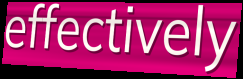
effectively